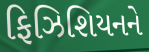
ફિઝિશિયનને